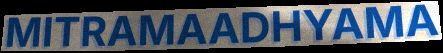
MITRAMAADHYAMA